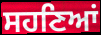
ਸਹਣਿਆਂ